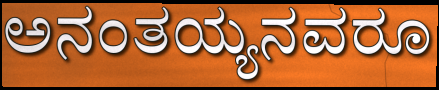
ಅನಂತಯ್ಯನವರೂ